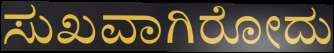
ಸುಖವಾಗಿರೋದು